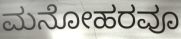
ಮನೋಹರವೂ